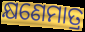
କ୍ଷଣେମାତ୍ର